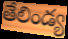
తేలిండ్య